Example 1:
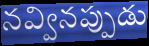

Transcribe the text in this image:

నవ్వినప్పుడు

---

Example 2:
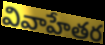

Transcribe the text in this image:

వివాహేతర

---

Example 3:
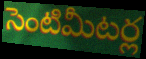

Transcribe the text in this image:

సెంటిమీటర్ల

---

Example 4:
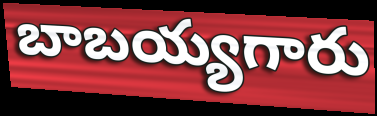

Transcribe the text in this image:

బాబయ్యగారు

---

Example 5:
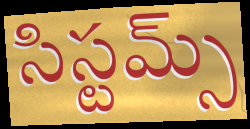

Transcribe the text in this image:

సిస్టమ్స్